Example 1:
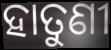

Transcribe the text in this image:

ହାତୁଣୀ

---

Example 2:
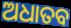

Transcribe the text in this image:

ଅଧାତବ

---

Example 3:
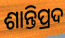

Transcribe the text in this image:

ଶାନ୍ତିପ୍ରଦ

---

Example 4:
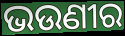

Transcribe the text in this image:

ଭଉଣୀର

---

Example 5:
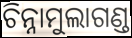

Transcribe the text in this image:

ଚିନ୍ନାମୁଲାଗଣ୍ଡ